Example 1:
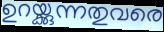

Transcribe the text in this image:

ഉറയ്ക്കുന്നതുവരെ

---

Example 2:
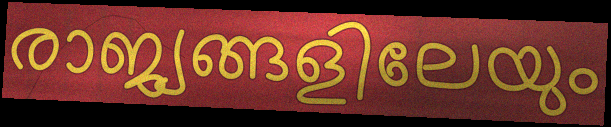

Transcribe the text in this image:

രാജ്യങ്ങളിലേയും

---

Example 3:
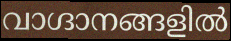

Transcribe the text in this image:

വാഗ്ദാനങ്ങളിൽ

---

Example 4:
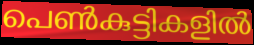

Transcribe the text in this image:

പെൺകുട്ടികളിൽ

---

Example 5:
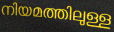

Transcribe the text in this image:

നിയമത്തിലുള്ള